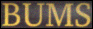
BUMS